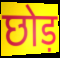
छोड़